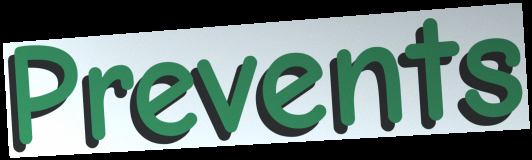
Prevents